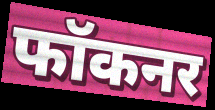
फॉकनर